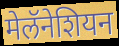
मेलॅनेशियन